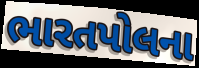
ભારતપોલના